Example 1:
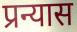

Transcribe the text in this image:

प्रन्यास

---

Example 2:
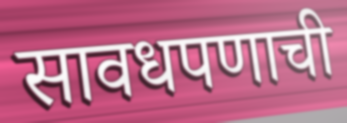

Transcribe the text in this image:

सावधपणाची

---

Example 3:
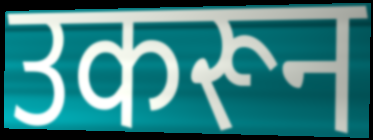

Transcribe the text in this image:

उकरून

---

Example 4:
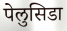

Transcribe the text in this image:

पेलुसिडा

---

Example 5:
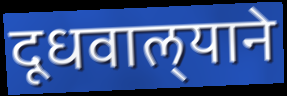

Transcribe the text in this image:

दूधवाल्याने